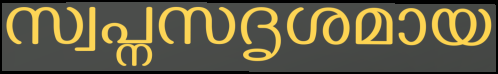
സ്വപ്നസദൃശമായ